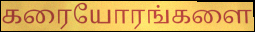
கரையோரங்களை